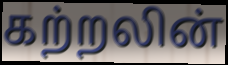
கற்றலின்